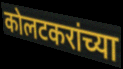
कोलटकरांच्या